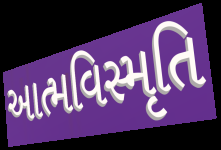
આત્મવિસ્મૃતિ